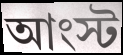
আংস্ট